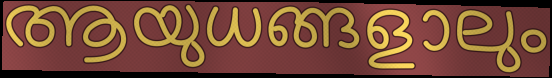
ആയുധങ്ങളാലും